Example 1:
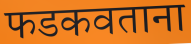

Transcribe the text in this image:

फडकवताना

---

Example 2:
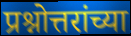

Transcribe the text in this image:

प्रश्नोत्तरांच्या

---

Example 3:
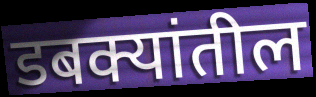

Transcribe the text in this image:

डबक्यांतील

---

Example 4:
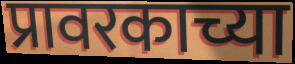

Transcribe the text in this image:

प्रावरकाच्या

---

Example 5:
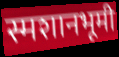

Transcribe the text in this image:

स्मशानभूमी